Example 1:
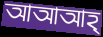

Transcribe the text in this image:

আআআহ্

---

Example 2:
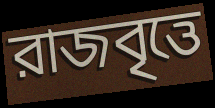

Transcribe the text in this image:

রাজবৃত্তে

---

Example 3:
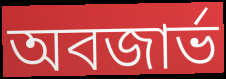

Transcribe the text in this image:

অবজার্ভ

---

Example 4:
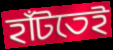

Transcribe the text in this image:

হাঁটতেই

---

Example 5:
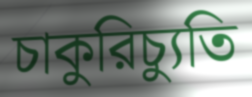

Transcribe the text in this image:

চাকুরিচ্যুতি